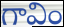
గావిం